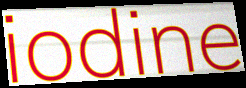
iodine